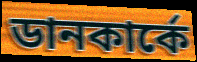
ডানকার্কে